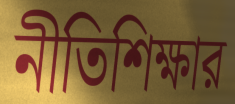
নীতিশিক্ষার